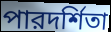
পারদর্শিতা